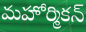
మహోర్మికన్